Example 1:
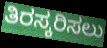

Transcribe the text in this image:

ತಿರಸ್ಕರಿಸಲು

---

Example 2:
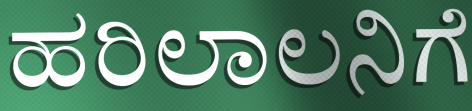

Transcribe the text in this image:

ಹರಿಲಾಲನಿಗೆ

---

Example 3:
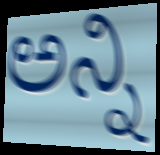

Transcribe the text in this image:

ಅನ್ನಿ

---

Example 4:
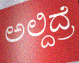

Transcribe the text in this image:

ಅಲ್ದಿದ್ರೆ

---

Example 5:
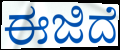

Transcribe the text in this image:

ಈಜಿದೆ